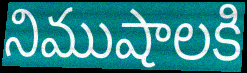
నిముషాలకి